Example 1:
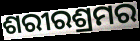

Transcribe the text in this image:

ଶରୀରଶ୍ରମର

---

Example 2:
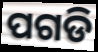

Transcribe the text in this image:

ପଗଡି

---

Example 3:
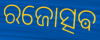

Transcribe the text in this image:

ରଜୋତ୍ସଵ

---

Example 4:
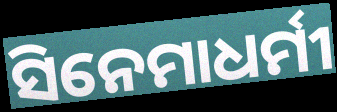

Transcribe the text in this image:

ସିନେମାଧର୍ମୀ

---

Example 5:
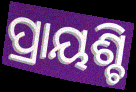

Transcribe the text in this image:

ପ୍ରାୟଶ୍ଚି